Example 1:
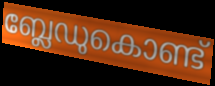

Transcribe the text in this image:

ബ്ലേഡുകൊണ്ട്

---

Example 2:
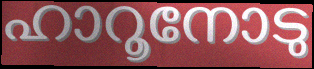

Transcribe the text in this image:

ഹാറൂനോടു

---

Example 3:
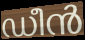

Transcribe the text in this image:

ഡീൻ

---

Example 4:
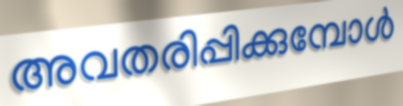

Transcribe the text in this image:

അവതരിപ്പിക്കുമ്പോൾ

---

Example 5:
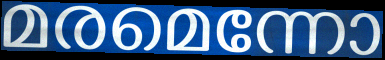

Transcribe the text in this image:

മരമെന്നോ